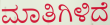
ಮಾತಿಗಿಳಿದೆ